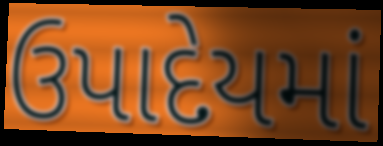
ઉપાદેયમાં